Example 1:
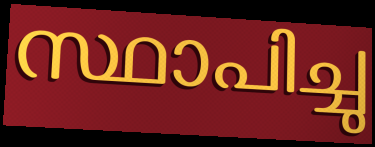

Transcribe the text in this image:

സ്ഥാപിച്ചു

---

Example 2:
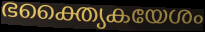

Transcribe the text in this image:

ഭക്ത്യൈകയേശം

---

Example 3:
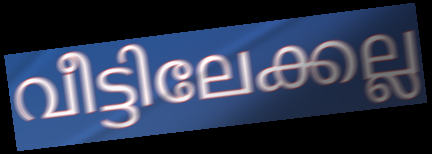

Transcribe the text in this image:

വീട്ടിലേക്കല്ല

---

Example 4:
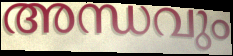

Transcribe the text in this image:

അന്ധവും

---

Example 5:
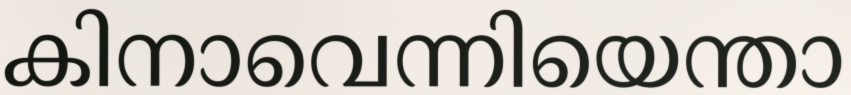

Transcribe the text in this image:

കിനാവെന്നിയെന്താ